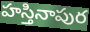
హస్తినాపుర